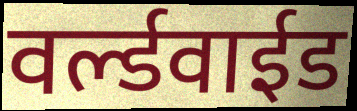
वर्ल्डवाईड